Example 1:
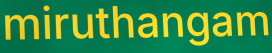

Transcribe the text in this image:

miruthangam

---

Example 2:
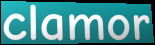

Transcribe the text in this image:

clamor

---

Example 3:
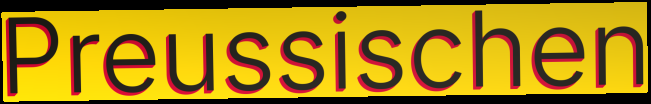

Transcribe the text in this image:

Preussischen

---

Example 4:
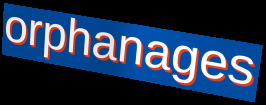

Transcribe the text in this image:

orphanages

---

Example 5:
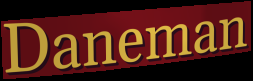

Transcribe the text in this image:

Daneman